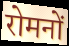
रोमनों